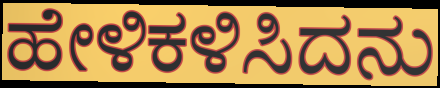
ಹೇಳಿಕಳಿಸಿದನು